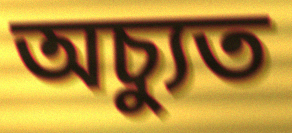
অচ্যুত